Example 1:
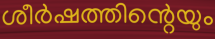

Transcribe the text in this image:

ശീർഷത്തിന്റെയും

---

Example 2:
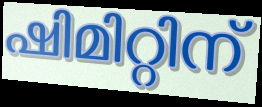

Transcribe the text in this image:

ഷിമിറ്റിന്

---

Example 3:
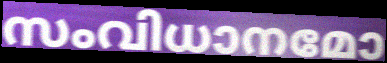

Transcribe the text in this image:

സംവിധാനമോ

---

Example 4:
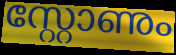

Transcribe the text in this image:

സ്റ്റോണും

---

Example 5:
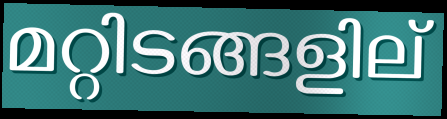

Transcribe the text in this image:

മറ്റിടങ്ങളില്